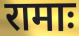
रामाः